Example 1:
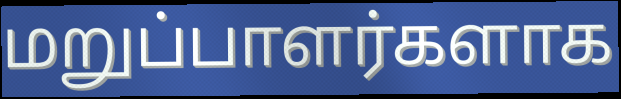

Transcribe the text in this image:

மறுப்பாளர்களாக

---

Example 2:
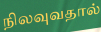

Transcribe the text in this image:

நிலவுவதால்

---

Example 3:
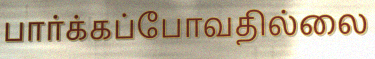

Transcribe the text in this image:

பார்க்கப்போவதில்லை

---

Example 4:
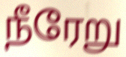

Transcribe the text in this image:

நீரேறு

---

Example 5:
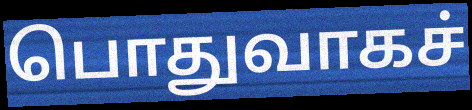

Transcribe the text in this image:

பொதுவாகச்